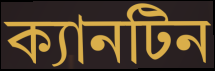
ক্যানটিন